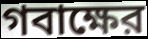
গবাক্ষের